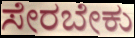
ಸೇರಬೇಕು